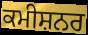
ਕਮੀਸ਼ਨਰ